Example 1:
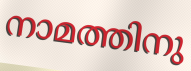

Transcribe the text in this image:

നാമത്തിനു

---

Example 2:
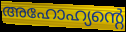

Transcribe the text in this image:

അഹോഹ്യന്റെ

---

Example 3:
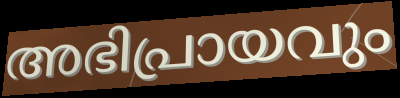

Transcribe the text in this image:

അഭിപ്രായവും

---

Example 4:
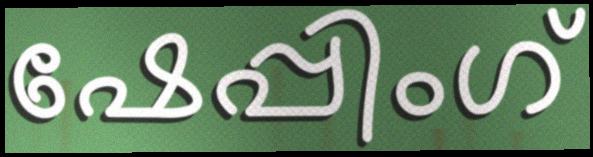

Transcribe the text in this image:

ഷേപ്പിംഗ്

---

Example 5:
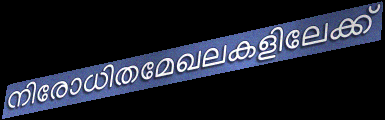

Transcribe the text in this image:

നിരോധിതമേഖലകളിലേക്ക്